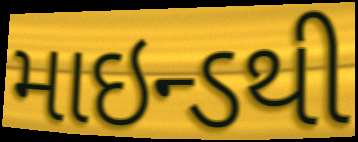
માઇન્ડથી